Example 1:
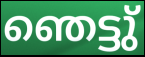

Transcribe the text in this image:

ഞെട്ടു്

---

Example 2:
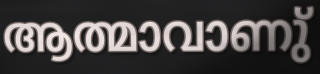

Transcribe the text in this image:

ആത്മാവാണു്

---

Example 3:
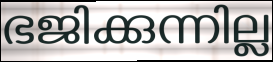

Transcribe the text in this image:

ഭജിക്കുന്നില്ല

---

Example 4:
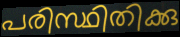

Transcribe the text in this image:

പരിസ്ഥിതിക്കു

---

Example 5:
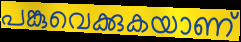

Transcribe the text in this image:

പങ്കുവെക്കുകയാണ്